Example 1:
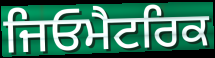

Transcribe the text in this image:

ਜਿਓਮੈਟਰਿਕ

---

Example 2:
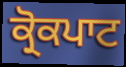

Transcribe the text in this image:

ਕ੍ਰੋਕਪਾਟ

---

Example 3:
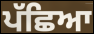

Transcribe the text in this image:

ਪੱਛਿਆ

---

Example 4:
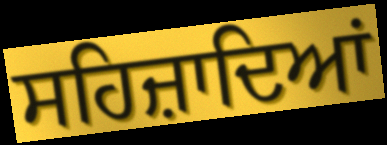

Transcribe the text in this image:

ਸਹਿਜ਼ਾਦਿਆਂ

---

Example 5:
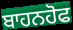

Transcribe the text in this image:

ਬਾਹਨਹੋਫ